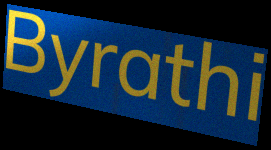
Byrathi